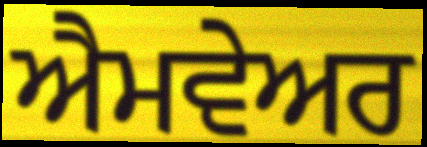
ਐਮਵੇਅਰ